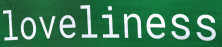
loveliness